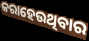
କରାହେଉଥିବାର